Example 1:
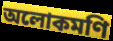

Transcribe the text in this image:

অলোকমণি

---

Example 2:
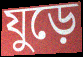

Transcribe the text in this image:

যুড়ে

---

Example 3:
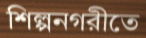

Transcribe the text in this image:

শিল্পনগরীতে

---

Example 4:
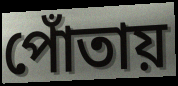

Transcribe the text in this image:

পোঁতায়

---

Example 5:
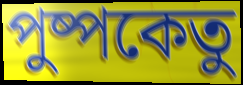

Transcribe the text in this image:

পুষ্পকেতু